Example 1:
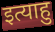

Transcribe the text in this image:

इत्याहु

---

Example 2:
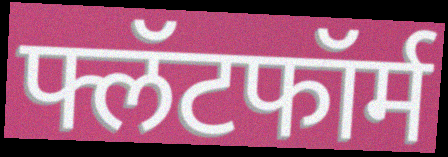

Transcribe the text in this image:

फ्लॅटफॉर्म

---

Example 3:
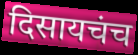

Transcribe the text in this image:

दिसायचंच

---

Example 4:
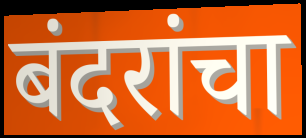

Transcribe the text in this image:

बंदरांचा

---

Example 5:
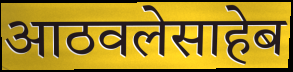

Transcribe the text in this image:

आठवलेसाहेब